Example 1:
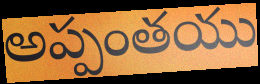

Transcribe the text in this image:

అప్పంతయు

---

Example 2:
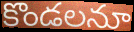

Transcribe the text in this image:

కొండలనూ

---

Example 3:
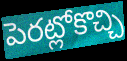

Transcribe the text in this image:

పెరట్లోకొచ్చి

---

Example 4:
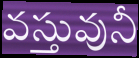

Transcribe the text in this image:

వస్తువునీ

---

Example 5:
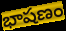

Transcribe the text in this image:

భాషణం